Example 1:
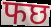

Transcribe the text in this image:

फछ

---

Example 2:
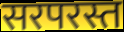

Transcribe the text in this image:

सरपरस्त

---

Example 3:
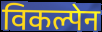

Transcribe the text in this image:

विकल्पेन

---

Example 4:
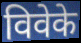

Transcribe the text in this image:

विवेके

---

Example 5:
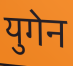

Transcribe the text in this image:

युगेन